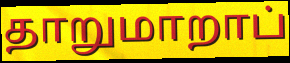
தாறுமாறாப்